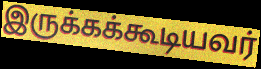
இருக்கக்கூடியவர்